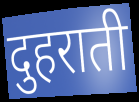
दुहराती